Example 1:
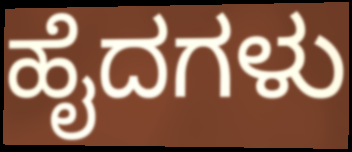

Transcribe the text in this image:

ಹೈದಗಳು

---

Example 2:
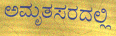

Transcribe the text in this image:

ಅಮೃತಸರದಲ್ಲಿ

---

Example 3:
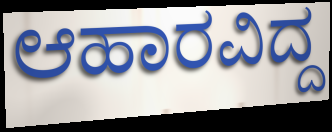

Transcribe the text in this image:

ಆಹಾರವಿದ್ದ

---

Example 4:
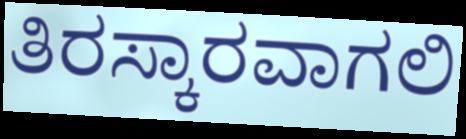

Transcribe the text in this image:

ತಿರಸ್ಕಾರವಾಗಲಿ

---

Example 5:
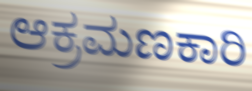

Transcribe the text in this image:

ಆಕ್ರಮಣಕಾರಿ